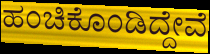
ಹಂಚಿಕೊಂಡಿದ್ದೇವೆ